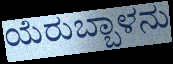
ಯೆರುಬ್ಬಾಳನು